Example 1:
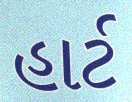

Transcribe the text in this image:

હાર્ટ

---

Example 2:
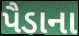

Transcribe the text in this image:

પૈડાના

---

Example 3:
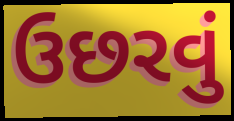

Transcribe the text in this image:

ઉછરવું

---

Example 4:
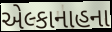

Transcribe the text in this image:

એલ્કાનાહના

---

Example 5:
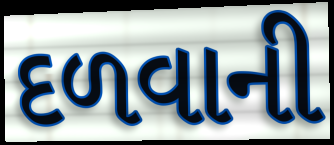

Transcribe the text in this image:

દળવાની